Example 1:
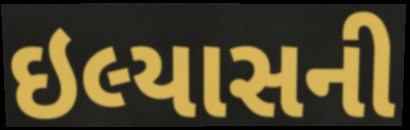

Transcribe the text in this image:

ઇલ્યાસની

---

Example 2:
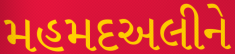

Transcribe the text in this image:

મહમદઅલીને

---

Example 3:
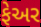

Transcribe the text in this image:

ફેઅર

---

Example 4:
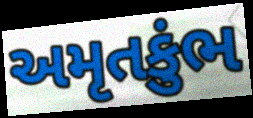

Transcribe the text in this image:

અમૃતકુંભ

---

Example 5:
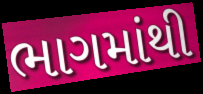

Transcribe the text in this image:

ભાગમાંથી